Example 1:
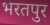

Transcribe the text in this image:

भरतपुर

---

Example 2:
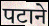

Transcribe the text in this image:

पटाने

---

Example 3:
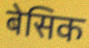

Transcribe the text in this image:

बेसिक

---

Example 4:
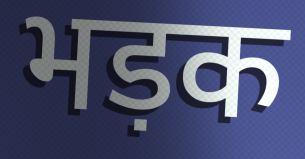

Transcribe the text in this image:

भड़क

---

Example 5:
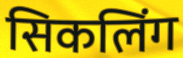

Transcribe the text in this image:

सिकलिंग